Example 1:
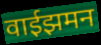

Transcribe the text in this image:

वाईझमन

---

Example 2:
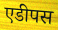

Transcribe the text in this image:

एडीपस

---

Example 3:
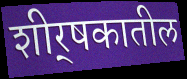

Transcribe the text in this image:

शीर्षकातील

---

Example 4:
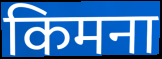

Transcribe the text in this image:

किमना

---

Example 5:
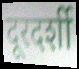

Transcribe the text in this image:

दूरदर्शी